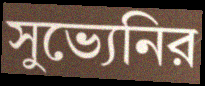
সুভ্যেনির